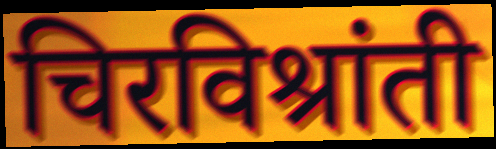
चिरविश्रांती